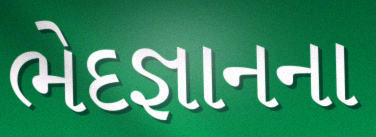
ભેદજ્ઞાનના